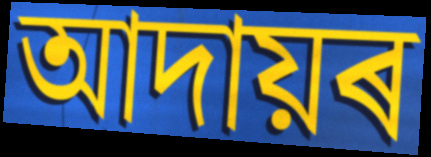
আদায়ৰ